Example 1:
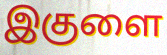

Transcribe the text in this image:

இகுளை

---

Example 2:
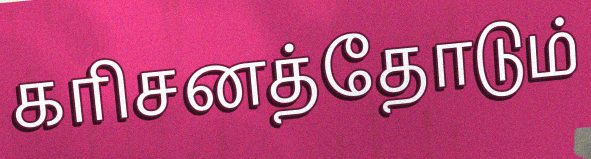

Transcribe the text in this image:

கரிசனத்தோடும்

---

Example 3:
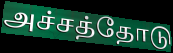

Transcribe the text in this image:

அச்சத்தோடு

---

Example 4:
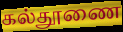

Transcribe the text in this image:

கல்தூணை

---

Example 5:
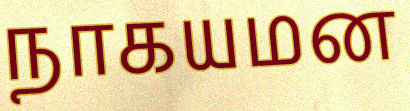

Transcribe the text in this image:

நாகயமன